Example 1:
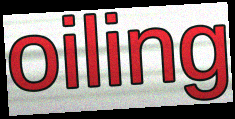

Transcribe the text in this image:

oiling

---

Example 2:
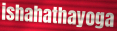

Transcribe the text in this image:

ishahathayoga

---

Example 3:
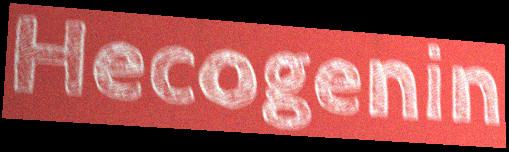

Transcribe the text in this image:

Hecogenin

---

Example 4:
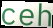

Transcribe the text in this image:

ceh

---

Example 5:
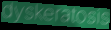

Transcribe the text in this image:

dyskeratosis